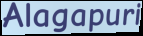
Alagapuri